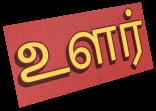
உளர்